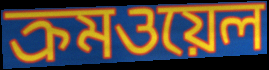
ক্রমওয়েল